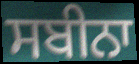
ਸਬੀਨਾ